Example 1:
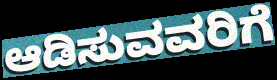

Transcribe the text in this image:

ಆಡಿಸುವವರಿಗೆ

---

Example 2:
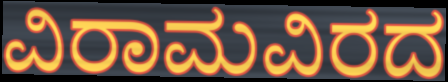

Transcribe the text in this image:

ವಿರಾಮವಿರದ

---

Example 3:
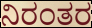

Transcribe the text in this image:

ನಿರಂತರ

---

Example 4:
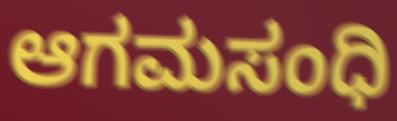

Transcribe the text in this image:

ಆಗಮಸಂಧಿ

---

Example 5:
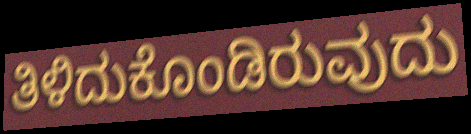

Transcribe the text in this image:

ತಿಳಿದುಕೊಂಡಿರುವುದು